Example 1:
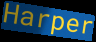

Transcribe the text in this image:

Harper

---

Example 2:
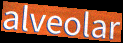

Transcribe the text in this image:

alveolar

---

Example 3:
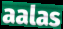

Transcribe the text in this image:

aalas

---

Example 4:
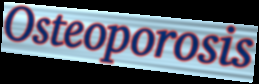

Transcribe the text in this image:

Osteoporosis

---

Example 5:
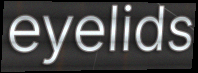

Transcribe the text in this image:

eyelids